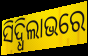
ସିଦ୍ଧିଲାଭରେ